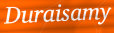
Duraisamy